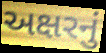
અક્ષરનું